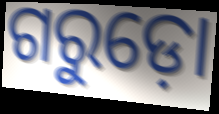
ଗରୁଡ଼ୋ